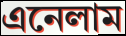
এনেলাম